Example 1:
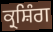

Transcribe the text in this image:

ਕ੍ਰਸ਼ਿੰਗ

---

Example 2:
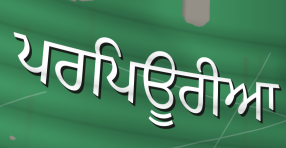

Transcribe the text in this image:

ਪਰਪਿਊਰੀਆ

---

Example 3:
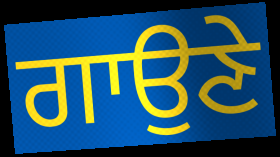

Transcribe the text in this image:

ਗਾਉਣੇ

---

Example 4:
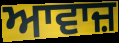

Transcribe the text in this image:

ਆਵਾਜ਼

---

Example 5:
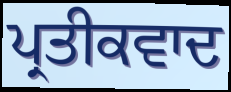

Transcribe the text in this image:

ਪ੍ਰਤੀਕਵਾਦ